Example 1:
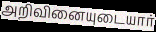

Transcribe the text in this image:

அறிவினையுடையார்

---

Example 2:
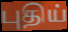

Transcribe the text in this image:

புதிய்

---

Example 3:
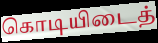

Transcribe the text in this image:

கொடியிடைத்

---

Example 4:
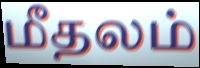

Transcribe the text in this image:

மீதலம்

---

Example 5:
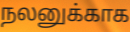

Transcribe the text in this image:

நலனுக்காக